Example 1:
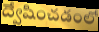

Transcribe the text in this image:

ద్వేషించడంలో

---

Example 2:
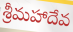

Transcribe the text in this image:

శ్రీమహాదేవ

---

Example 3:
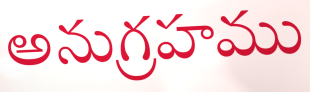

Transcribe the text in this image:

అనుగ్రహము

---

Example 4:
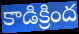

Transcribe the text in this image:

కాడిక్రింద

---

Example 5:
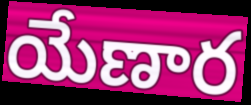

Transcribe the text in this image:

యేణార